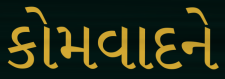
કોમવાદને